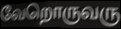
வேறொருவரு